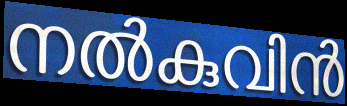
നൽകുവിൻ